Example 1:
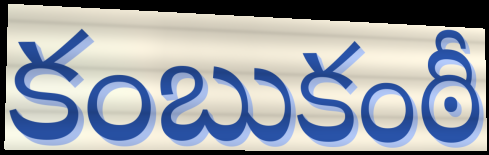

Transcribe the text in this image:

కంబుకంఠీ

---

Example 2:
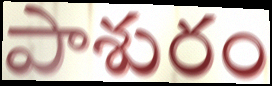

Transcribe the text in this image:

పాశురం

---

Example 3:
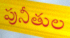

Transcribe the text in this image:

పునీతుల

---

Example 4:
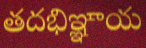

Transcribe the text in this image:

తదభిఞ్ఞాయ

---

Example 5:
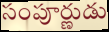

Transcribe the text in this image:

సంపూర్ణుడు